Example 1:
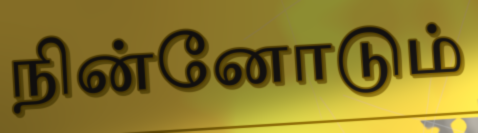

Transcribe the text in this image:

நின்னோடும்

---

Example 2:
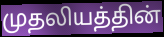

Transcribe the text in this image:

முதலியத்தின்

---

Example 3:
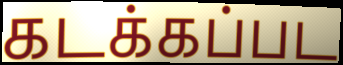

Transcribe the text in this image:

கடக்கப்பட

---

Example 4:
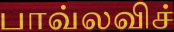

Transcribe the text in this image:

பாவ்லவிச்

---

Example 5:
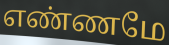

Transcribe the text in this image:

எண்ணமே